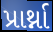
પ્રાર્થ્ના